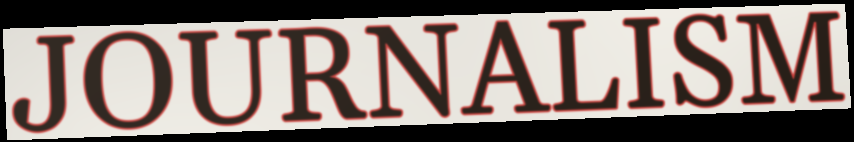
JOURNALISM